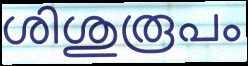
ശിശുരൂപം